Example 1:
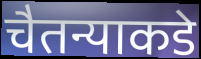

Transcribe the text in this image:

चैतन्याकडे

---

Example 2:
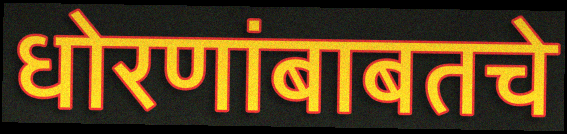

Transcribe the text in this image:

धोरणांबाबतचे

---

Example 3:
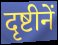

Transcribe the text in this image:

दृष्टीनें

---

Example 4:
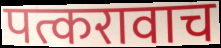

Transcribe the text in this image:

पत्करावाच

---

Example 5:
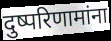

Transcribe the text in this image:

दुष्परिणामांना